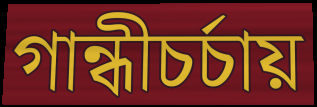
গান্ধীচর্চায়